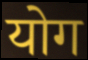
योग